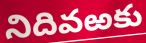
నిదివఱకు